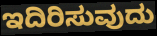
ಇದಿರಿಸುವುದು